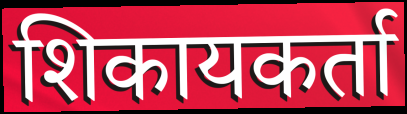
शिकायकर्ता